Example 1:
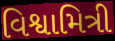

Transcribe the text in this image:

વિશ્વામિત્રી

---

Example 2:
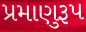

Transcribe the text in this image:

પ્રમાણુરૂપ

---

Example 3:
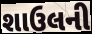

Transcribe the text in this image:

શાઉલની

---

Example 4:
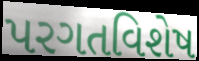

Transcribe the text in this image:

પરગતવિશેષ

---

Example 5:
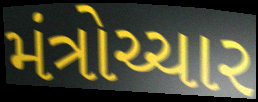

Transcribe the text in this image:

મંત્રોચ્ચાર